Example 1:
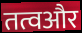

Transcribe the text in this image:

तत्वऔर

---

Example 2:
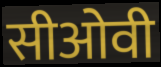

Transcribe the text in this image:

सीओवी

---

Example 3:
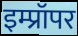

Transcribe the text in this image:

इम्प्रॉपर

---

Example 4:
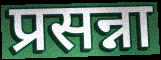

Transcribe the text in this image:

प्रसन्ना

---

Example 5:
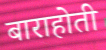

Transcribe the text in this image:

बाराहोती